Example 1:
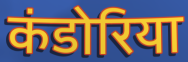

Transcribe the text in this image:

कंडोरिया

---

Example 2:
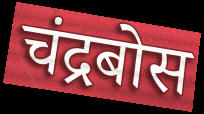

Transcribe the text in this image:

चंद्रबोस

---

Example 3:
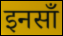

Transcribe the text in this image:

इनसाँ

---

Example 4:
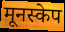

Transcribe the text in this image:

मूनस्केप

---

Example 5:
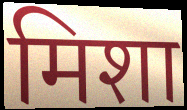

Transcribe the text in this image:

मिशा